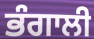
ਭੰਗਾਲੀ